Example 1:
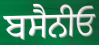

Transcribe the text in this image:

ਬਸੈਨੀਓ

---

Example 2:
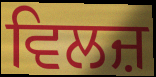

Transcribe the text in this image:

ਵਿਲਜ਼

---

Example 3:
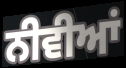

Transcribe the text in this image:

ਨੀਵੀਆਂ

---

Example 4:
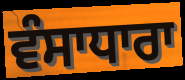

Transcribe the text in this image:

ਵੰਸਾਧਾਰਾ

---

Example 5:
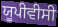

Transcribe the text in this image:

ਯੂਪੀਵੀਸੀ